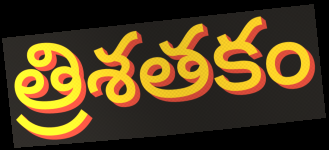
త్రిశతకం